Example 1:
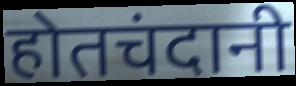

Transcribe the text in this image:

होतचंदानी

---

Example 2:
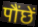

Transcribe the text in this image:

पौंछें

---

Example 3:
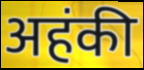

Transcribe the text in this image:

अहंकी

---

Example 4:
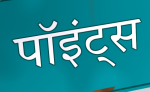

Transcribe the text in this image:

पॉइंट्स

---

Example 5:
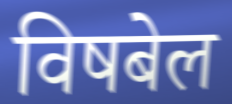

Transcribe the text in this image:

विषबेल